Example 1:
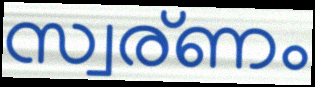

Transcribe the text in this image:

സ്വര്ണം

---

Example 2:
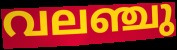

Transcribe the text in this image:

വലഞ്ചു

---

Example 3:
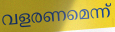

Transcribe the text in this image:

വളരണമെന്ന്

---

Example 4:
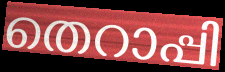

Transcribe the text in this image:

തെറാപ്പി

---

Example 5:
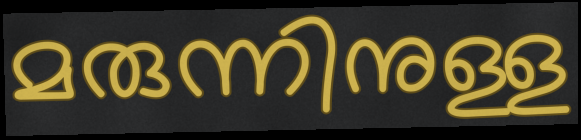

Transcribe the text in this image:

മരുന്നിനുള്ള